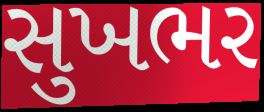
સુખભર